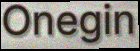
Onegin